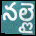
నల్లై